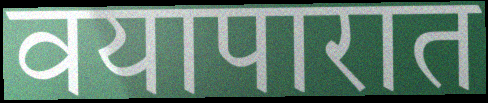
वयापारात